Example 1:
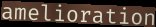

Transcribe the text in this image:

amelioration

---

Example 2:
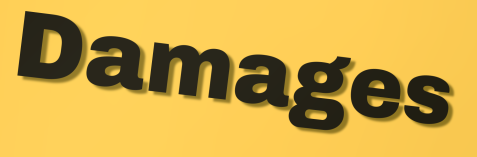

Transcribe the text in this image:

Damages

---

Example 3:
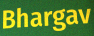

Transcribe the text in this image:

Bhargav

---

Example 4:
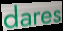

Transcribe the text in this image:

dares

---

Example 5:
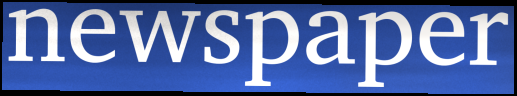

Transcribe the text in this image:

newspaper